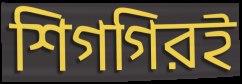
শিগগিরই